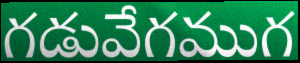
గడువేగముగ